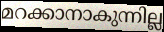
മറക്കാനാകുന്നില്ല